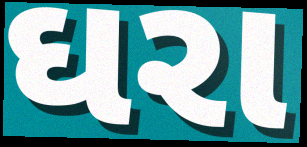
ઘરા